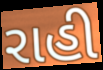
રાહી